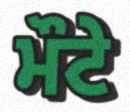
ਮੌਟੇ